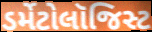
ડર્મેટોલૉજિસ્ટ